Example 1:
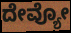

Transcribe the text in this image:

ದೇವ್ಯೋ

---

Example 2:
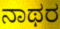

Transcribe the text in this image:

ನಾಥರ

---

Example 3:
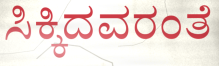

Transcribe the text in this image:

ಸಿಕ್ಕಿದವರಂತೆ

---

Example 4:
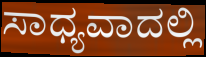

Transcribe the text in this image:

ಸಾಧ್ಯವಾದಲ್ಲಿ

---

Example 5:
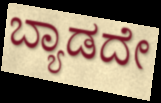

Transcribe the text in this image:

ಬ್ಯಾಡದೇ